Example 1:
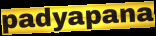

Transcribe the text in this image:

padyapana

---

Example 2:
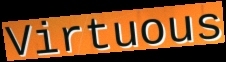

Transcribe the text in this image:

Virtuous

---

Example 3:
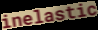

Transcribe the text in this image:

inelastic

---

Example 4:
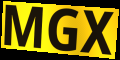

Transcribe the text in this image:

MGX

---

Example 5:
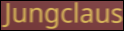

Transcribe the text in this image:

Jungclaus